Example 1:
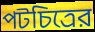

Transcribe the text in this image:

পটচিত্রের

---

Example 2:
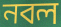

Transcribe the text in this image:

নবল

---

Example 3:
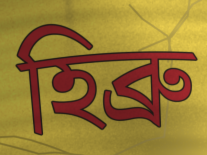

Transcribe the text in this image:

হিব্রু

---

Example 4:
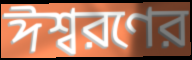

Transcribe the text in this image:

ঈশ্বরণের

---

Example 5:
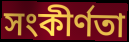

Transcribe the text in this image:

সংকীর্ণতা